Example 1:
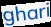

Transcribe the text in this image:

ghari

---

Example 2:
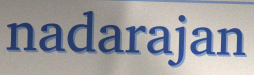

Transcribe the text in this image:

nadarajan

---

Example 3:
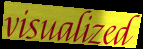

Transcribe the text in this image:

visualized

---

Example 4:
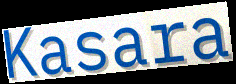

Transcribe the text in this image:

Kasara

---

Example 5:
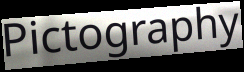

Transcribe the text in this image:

Pictography